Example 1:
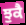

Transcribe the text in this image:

ਝੁਕੈ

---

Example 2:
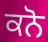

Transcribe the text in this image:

ਕਨੋ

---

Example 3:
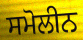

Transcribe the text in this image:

ਸਮੋਲੀਨ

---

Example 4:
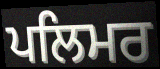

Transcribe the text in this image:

ਪਲਿਮਰ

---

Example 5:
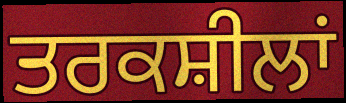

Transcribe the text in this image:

ਤਰਕਸ਼ੀਲਾਂ